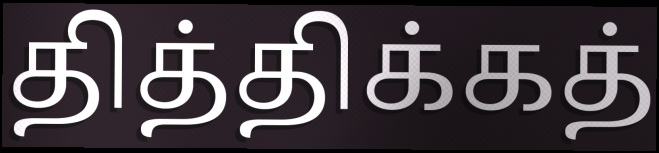
தித்திக்கத்